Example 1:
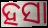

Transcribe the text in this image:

ହସା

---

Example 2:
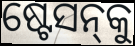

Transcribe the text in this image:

ଷ୍ଟେସନ୍‍କୁ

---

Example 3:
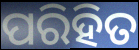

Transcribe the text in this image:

ପରିହିତ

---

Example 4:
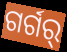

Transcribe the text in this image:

ଗର୍ଗର୍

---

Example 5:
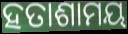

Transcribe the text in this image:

ହତାଶାମୟ